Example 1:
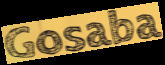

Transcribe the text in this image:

Gosaba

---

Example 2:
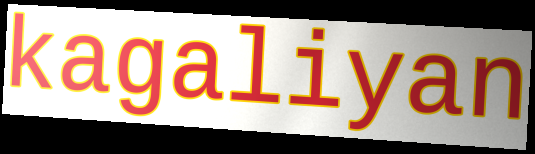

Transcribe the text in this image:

kagaliyan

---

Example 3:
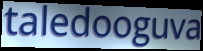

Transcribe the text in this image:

taledooguva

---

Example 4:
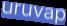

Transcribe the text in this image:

uruvap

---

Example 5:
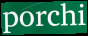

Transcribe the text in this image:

porchi